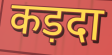
कड़दा